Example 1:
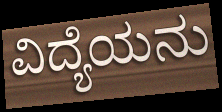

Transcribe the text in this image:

ವಿದ್ಯೆಯನು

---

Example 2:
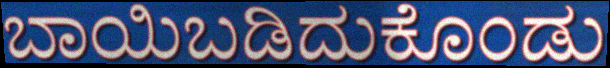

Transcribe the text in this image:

ಬಾಯಿಬಡಿದುಕೊಂಡು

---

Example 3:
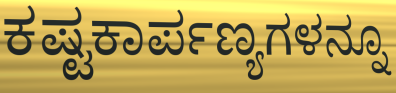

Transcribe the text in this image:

ಕಷ್ಟಕಾರ್ಪಣ್ಯಗಳನ್ನೂ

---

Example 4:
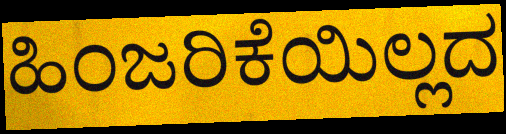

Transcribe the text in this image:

ಹಿಂಜರಿಕೆಯಿಲ್ಲದ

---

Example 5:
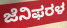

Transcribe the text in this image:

ಜೆನಿಫರಳ